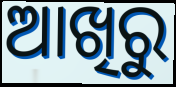
ଆଖିରୁ